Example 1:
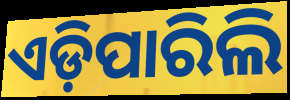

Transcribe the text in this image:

ଏଡ଼ିପାରିଲି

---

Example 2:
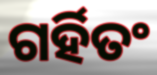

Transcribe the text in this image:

ଗର୍ହିତଂ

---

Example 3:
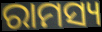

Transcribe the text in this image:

ରାମସ୍ୟ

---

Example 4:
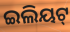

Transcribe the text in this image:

ଇଲିୟଟ୍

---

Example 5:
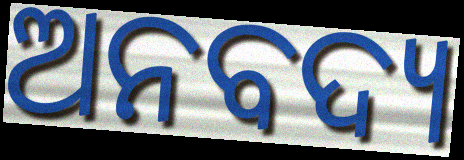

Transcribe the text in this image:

ଅନବଦ୍ୟ